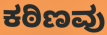
ಕಠಿಣವು